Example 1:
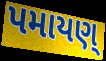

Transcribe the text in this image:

પમાયણ્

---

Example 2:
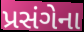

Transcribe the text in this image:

પ્રસંગેના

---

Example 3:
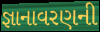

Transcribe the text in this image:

જ્ઞાનાવરણની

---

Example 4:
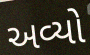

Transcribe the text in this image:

અવ્યો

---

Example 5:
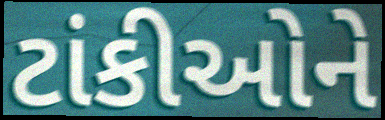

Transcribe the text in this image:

ટાંકીઓને